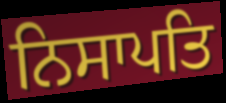
ਨਿਸਾਪਤਿ